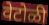
वेटोळी